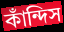
কাঁন্দিস